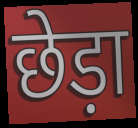
छेड़ा